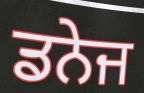
ਡਨੇਜ